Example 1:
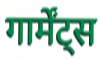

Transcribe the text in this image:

गार्मेंट्स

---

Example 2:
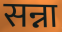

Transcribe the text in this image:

सन्ना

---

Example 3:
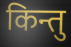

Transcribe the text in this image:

किन्‍तु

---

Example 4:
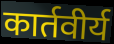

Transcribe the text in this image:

कार्तवीर्य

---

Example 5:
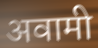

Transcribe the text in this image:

अवामी